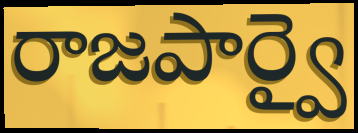
రాజపార్వై